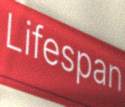
Lifespan